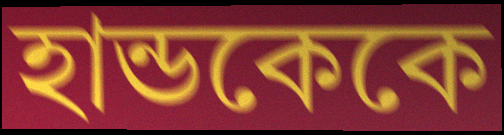
হান্ডকেকে